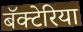
बॅक्टेरिया